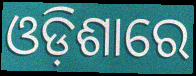
ଓଡ଼ିଶାରେ